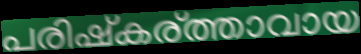
പരിഷ്കര്ത്താവായ